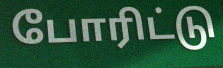
போரிட்டு